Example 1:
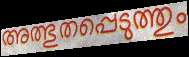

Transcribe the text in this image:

അത്ഭുതപ്പെടുത്തും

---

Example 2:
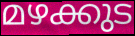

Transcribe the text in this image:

മഴക്കുട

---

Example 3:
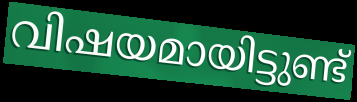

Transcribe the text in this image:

വിഷയമായിട്ടുണ്ട്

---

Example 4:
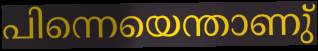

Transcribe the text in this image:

പിന്നെയെന്താണു്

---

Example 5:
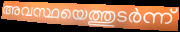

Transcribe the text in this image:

അവസ്ഥയെത്തുടർന്ന്